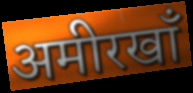
अमीरखाँ